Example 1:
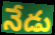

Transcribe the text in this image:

నేడు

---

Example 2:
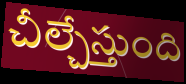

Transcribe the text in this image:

చీల్చేస్తుంది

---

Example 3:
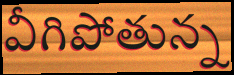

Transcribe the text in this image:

వీగిపోతున్న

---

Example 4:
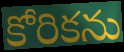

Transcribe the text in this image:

కోరికను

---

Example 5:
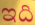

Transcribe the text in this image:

ఇది